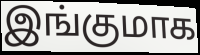
இங்குமாக